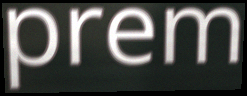
prem